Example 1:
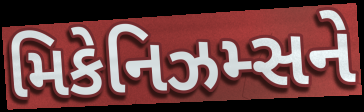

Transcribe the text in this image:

મિકેનિઝમ્સને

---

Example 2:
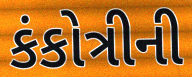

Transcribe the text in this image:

કંકોત્રીની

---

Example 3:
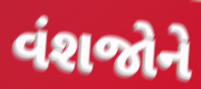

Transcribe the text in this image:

વંશજોને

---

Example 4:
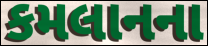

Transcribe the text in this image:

કમલાનના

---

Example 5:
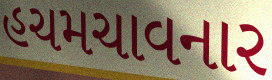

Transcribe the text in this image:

હચમચાવનાર